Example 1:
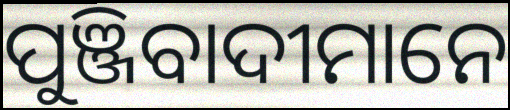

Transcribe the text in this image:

ପୁଞ୍ଜିବାଦୀମାନେ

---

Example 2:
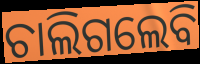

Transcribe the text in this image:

ଚାଲିଗଲେବି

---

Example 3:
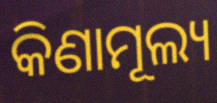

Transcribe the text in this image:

କିଣାମୂଲ୍ୟ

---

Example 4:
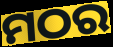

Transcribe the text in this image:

ମଠର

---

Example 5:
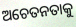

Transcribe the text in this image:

ଅଚେତନତାକୁ